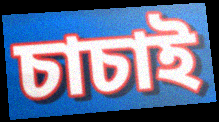
চাচাই